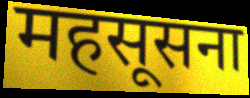
महसूसना